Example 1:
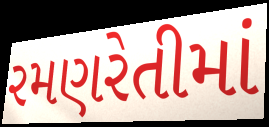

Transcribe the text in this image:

રમણરેતીમાં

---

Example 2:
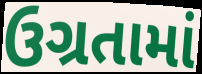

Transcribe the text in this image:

ઉગ્રતામાં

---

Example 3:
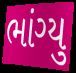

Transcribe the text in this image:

ભાંગ્યુ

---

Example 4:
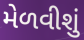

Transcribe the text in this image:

મેળવીશું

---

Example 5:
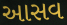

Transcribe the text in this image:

આસવ